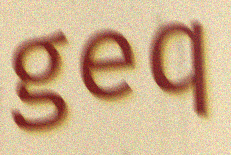
geq